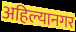
अहिल्यानगर